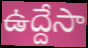
ఉద్దేసా